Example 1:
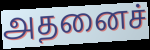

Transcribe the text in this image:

அதனைச்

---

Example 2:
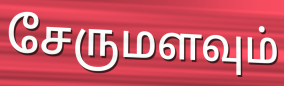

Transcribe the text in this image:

சேருமளவும்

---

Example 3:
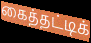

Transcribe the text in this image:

கைத்தட்டிக்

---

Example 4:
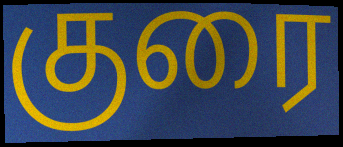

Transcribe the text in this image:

குரை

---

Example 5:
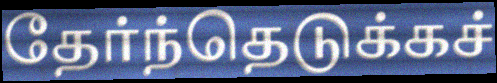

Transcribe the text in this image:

தேர்ந்தெடுக்கச்